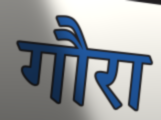
गौरा